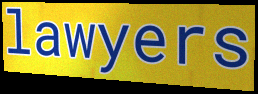
lawyers